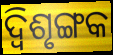
ଦ୍ଵିଶୃଙ୍ଗକ